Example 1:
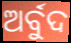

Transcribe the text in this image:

ଅର୍ବୁଦ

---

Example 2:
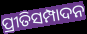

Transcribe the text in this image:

ପ୍ରୀତିସମ୍ପାଦନ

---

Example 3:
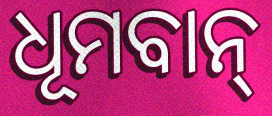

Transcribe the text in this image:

ଧୂମବାନ୍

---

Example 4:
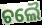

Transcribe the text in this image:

ଚଲୈ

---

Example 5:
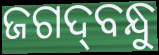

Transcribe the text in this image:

ଜଗଦ୍‌ବନ୍ଧୁ